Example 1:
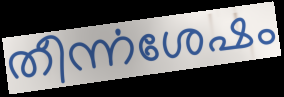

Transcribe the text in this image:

തീൎന്നശേഷം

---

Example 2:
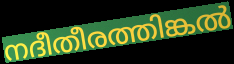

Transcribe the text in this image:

നദീതീരത്തിങ്കൽ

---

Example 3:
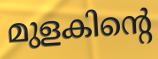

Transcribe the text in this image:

മുളകിന്റെ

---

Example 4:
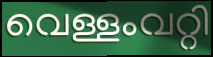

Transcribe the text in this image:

വെള്ളംവറ്റി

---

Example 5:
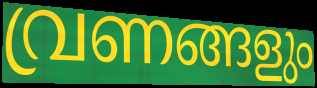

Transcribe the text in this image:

വ്രണങ്ങളും